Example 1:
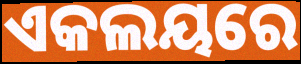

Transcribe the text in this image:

ଏକଲୟରେ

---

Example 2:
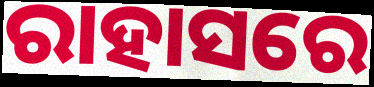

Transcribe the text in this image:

ରାହାସରେ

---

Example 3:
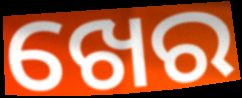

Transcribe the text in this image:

ଖେର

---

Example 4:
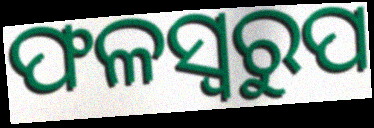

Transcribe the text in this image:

ଫଳସ୍ୱରୁପ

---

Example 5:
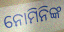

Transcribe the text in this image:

ନୋମିନିଙ୍କ